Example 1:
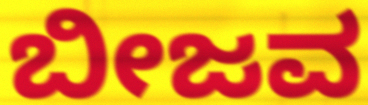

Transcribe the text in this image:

ಬೀಜವ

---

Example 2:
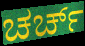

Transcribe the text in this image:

ಚರ್ಚ್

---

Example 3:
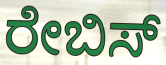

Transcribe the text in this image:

ರೇಬಿಸ್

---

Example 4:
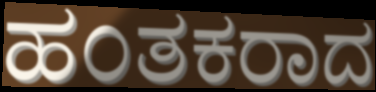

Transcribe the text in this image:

ಹಂತಕರಾದ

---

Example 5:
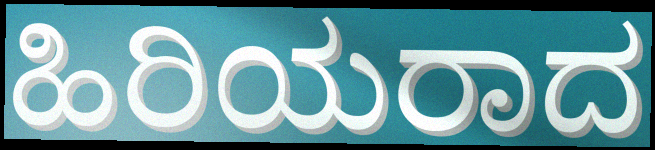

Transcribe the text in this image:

ಹಿರಿಯರಾದ